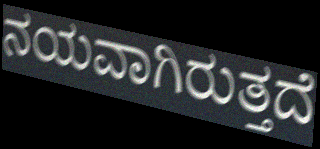
ನಯವಾಗಿರುತ್ತದೆ